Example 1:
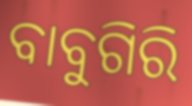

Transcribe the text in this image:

ବାବୁଗିରି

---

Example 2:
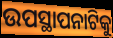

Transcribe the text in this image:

ଉପସ୍ଥାପନାଟିକୁ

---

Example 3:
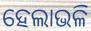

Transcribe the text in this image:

ହେଲାଭଳି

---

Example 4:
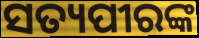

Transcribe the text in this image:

ସତ୍ୟପୀରଙ୍କ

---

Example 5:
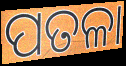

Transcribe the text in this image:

ପତଳା